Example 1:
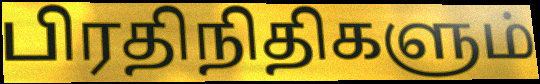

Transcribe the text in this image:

பிரதிநிதிகளும்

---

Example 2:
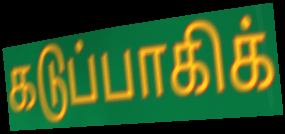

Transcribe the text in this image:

கடுப்பாகிக்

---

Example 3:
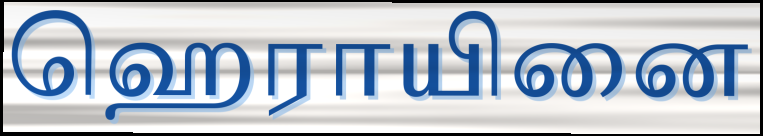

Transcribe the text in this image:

ஹெராயினை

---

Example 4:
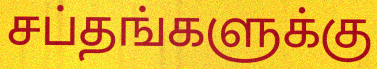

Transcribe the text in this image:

சப்தங்களுக்கு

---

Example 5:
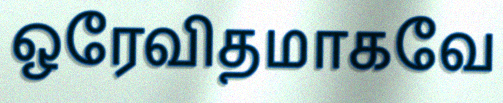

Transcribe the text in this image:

ஒரேவிதமாகவே